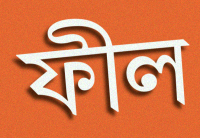
ফীল